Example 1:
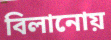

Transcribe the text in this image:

বিলানোয়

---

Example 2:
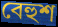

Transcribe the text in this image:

বেহুশ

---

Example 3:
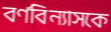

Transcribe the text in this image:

বর্ণবিন্যাসকে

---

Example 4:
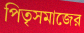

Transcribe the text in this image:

পিতৃসমাজের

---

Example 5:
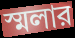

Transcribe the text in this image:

স্মলার